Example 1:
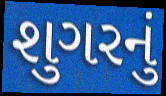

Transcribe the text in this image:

શુગરનું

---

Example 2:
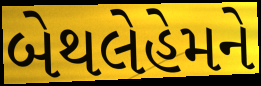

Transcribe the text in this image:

બેથલેહેમને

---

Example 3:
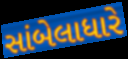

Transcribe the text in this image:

સાંબેલાધારે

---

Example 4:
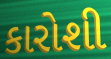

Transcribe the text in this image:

કારોશી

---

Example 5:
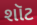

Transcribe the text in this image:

શૉટ